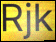
Rjk